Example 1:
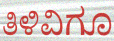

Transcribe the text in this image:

ತಿಳಿವಿಗೂ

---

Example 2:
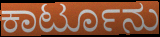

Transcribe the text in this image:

ಕಾರ್ಟೂನು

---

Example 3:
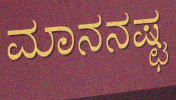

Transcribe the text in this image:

ಮಾನನಷ್ಟ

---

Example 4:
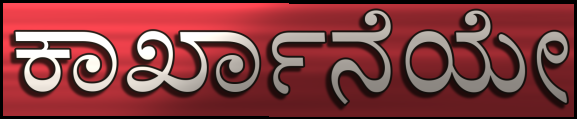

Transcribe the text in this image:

ಕಾರ್ಖಾನೆಯೇ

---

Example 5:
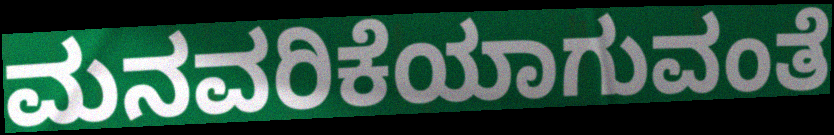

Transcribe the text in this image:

ಮನವರಿಕೆಯಾಗುವಂತೆ